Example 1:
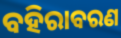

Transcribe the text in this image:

ବହିରାବରଣ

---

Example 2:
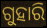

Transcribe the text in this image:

ଗୁହାରି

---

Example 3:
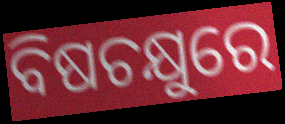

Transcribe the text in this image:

ବିଷଚକ୍ଷୁରେ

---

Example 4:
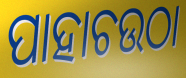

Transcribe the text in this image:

ପାହାଚଉଠା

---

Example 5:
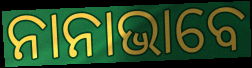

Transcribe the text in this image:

ନାନାଭାବେ